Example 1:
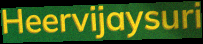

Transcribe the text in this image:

Heervijaysuri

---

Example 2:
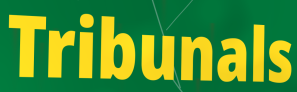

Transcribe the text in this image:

Tribunals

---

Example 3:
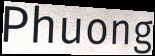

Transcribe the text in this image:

Phuong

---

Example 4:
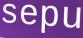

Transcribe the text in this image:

sepu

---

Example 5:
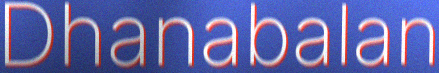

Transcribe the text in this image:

Dhanabalan